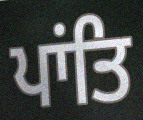
ਪਾਂਤਿ